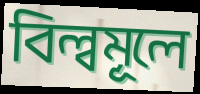
বিল্বমূলে